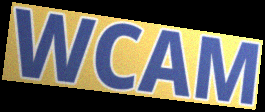
WCAM